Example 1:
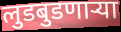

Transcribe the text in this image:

लुडबुडणाऱ्या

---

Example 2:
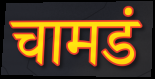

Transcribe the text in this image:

चामडं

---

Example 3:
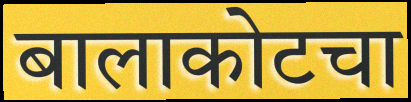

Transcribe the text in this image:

बालाकोटचा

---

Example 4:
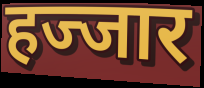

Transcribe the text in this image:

हज्जार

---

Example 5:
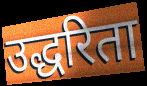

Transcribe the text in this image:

उद्धरिता